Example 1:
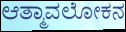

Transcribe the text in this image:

ಆತ್ಮಾವಲೋಕನ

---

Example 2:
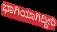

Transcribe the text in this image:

ಭಾಗಿಯಾಗಿದ್ದೀರಿ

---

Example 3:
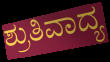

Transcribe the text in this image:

ಶ್ರುತಿವಾದ್ಯ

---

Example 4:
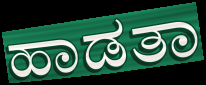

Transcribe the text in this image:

ಹಾಡತಾ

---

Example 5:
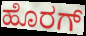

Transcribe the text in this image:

ಹೊರಗ್